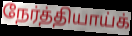
நேர்த்தியாய்க்